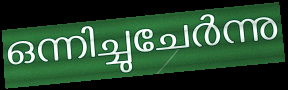
ഒന്നിച്ചുചേർന്നു